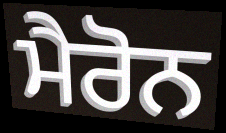
ਮੈਰੋਨ